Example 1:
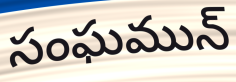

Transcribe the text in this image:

సంఘమున్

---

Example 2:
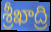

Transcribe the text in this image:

శ్రీఖాద్రి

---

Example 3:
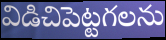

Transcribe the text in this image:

విడిచిపెట్టగలను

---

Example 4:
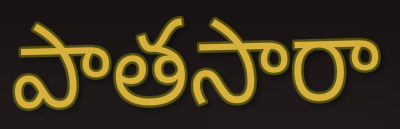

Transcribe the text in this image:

పాతసారా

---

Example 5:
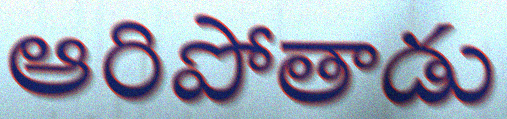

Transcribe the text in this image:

ఆరిపోతాడు